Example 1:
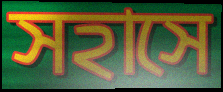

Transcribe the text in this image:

সহাসে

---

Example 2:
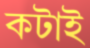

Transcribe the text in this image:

কটাই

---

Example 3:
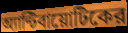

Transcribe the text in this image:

অ্যান্টিবায়োটিকের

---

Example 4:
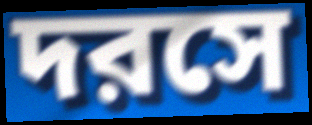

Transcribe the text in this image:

দরসে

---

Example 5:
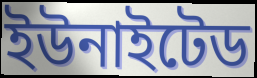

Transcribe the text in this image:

ইউনাইটেড